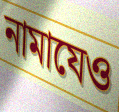
নামাযেও